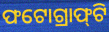
ଫଟୋଗ୍ରାଫ୍‌ଟି